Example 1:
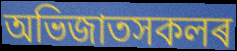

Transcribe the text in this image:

অভিজাতসকলৰ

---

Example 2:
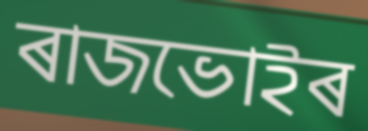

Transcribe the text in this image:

ৰাজভোইৰ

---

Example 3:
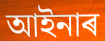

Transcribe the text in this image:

আইনাৰ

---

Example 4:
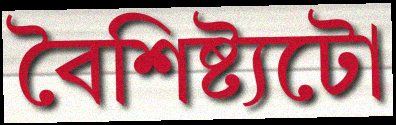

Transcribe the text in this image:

বৈশিষ্ট্যটো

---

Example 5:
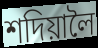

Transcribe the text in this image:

শদিয়ালৈ